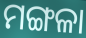
ମଙ୍ଗଳା